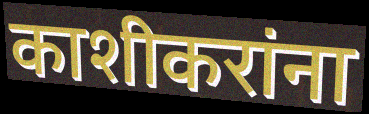
काशीकरांना